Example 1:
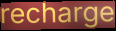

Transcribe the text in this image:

recharge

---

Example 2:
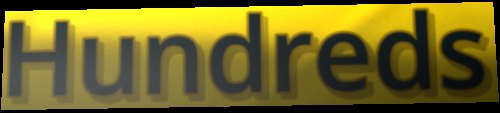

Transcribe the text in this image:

Hundreds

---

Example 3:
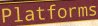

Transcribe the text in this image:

Platforms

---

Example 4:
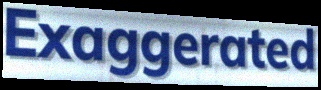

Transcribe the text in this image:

Exaggerated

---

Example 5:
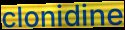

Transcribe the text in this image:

clonidine